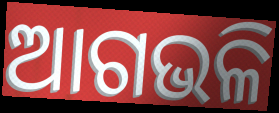
ଆଗଭଳି